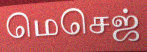
மெசெஜ்